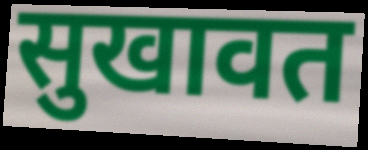
सुखावत